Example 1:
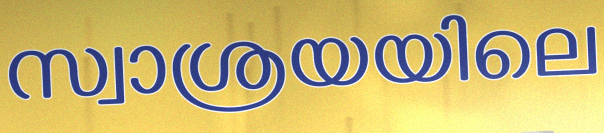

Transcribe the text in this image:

സ്വാശ്രയയിലെ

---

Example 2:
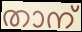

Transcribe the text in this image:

താന്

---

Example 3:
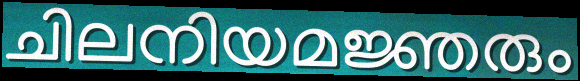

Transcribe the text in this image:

ചിലനിയമജ്ഞരും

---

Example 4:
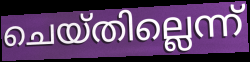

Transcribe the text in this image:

ചെയ്തില്ലെന്ന്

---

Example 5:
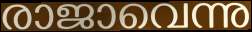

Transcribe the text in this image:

രാജാവെന്നു